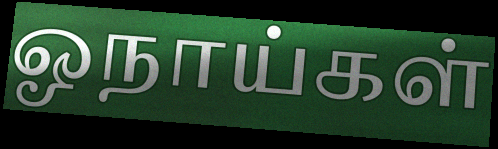
ஓநாய்கள்